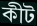
কীট